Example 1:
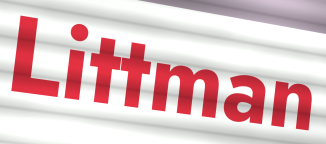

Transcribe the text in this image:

Littman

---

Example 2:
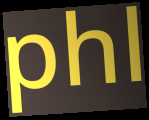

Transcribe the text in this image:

phl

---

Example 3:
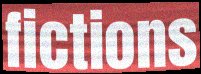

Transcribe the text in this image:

fictions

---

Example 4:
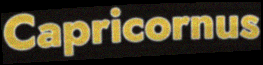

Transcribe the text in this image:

Capricornus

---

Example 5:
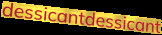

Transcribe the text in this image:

dessicantdessicant